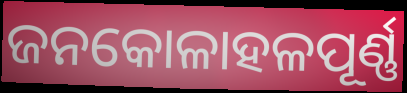
ଜନକୋଳାହଳପୂର୍ଣ୍ଣ